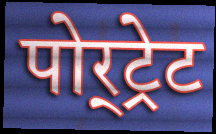
पोर्ट्रेट